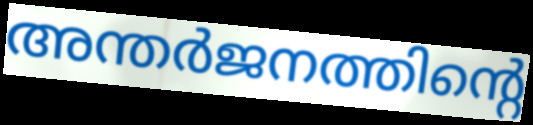
അന്തർജനത്തിന്റെ